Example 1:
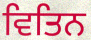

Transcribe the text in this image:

ਵਿਤਿਨ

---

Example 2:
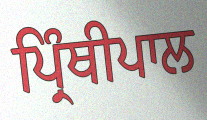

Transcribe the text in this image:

ਪ੍ਰਿੰਥੀਪਾਲ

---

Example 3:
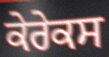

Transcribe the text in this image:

ਕੇਰੇਕਸ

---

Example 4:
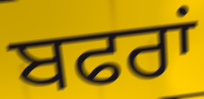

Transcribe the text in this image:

ਬਫਰਾਂ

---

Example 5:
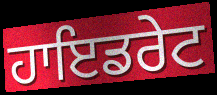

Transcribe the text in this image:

ਹਾਇਡਰੇਟ